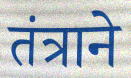
तंत्राने